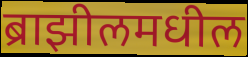
ब्राझीलमधील